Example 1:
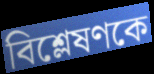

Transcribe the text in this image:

বিশ্লেষণকে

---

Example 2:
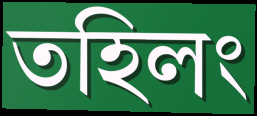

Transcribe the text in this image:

তহিলং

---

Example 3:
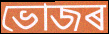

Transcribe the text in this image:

ভোজৰ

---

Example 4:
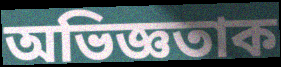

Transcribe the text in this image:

অভিজ্ঞতাক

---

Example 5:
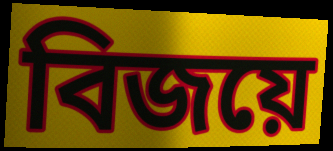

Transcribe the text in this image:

বিজয়ে